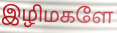
இழிமகளே